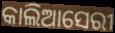
କାଲିଆସେରୀ